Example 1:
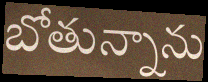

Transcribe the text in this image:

బోతున్నాను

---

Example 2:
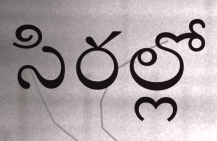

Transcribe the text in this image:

సిరల్లో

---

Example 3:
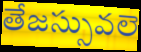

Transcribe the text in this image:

తేజస్సువలె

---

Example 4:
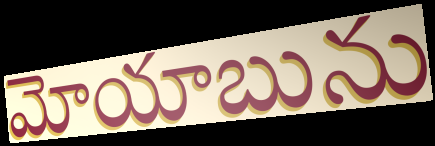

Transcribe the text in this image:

మోయాబును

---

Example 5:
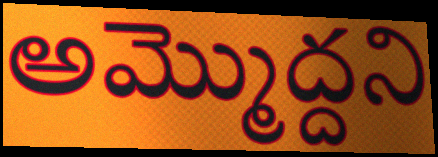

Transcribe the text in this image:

అమ్మొద్దని